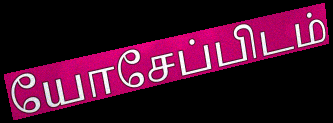
யோசேப்பிடம்